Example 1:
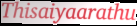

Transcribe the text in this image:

Thisaiyaarathu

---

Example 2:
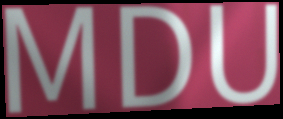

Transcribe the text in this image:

MDU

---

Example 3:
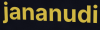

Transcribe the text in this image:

jananudi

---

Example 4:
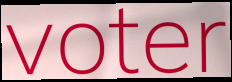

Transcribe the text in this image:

voter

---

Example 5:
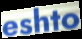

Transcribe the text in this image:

eshto